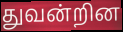
துவன்றின